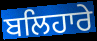
ਬਲਿਹਾਰੇ